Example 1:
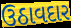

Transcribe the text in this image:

ઉઠાવદાર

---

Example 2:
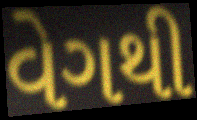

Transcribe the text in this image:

વેગથી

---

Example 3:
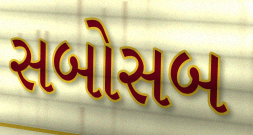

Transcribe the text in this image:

સબોસબ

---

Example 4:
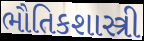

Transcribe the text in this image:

ભૌતિકશાસ્ત્રી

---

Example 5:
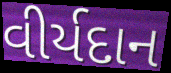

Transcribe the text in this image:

વીર્યદાન